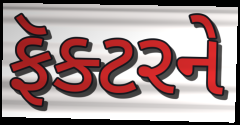
ફૅક્ટરને